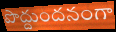
పొద్దుందనంగా